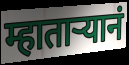
म्हातार्‍यानं